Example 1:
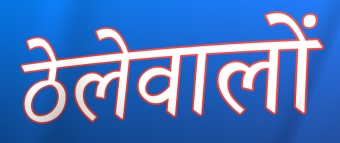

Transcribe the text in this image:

ठेलेवालों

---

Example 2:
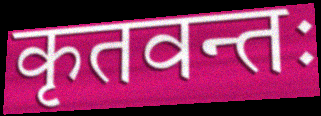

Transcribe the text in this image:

कृतवन्तः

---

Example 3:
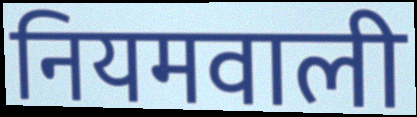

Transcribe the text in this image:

नियमवाली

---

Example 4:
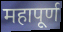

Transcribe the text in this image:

महापूर्ण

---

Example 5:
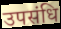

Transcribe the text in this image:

उपसंधि